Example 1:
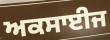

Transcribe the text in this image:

ਅਕਸਾਈਜ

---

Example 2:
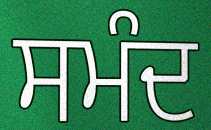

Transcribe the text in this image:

ਸਮੰਦ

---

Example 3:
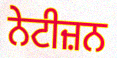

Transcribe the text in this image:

ਨੇਟੀਜ਼ਨ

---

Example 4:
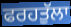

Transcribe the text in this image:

ਫਰਹਤੁੱਲਾ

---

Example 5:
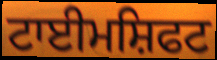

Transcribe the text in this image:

ਟਾਈਮਸ਼ਿਫਟ